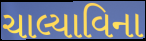
ચાલ્યાવિના